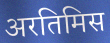
अरतिमिस